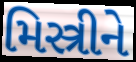
મિસ્ત્રીને